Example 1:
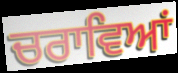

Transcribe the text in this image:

ਚਰਾਵਿਆਂ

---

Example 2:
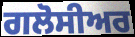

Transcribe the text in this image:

ਗਲੋਸੀਅਰ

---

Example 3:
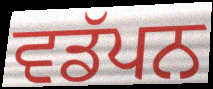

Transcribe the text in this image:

ਵਡੱਪਨ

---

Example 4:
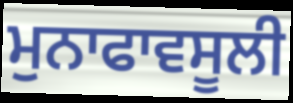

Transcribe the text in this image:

ਮੁਨਾਫਾਵਸੂਲੀ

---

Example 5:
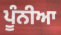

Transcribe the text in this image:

ਪੂੰਨੀਆ